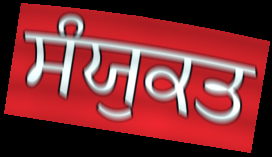
ਸੰਯੁਕਤ